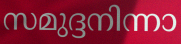
സമുദ്ദനിന്നാ